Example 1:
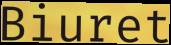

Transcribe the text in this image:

Biuret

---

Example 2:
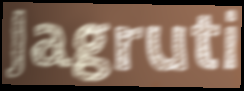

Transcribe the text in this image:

Jagruti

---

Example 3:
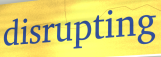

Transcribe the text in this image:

disrupting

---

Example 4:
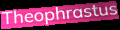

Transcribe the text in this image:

Theophrastus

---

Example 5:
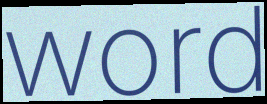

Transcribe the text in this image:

word